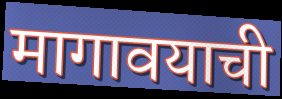
मागावयाची